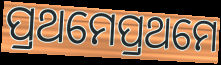
ପ୍ରଥମେପ୍ରଥମେ